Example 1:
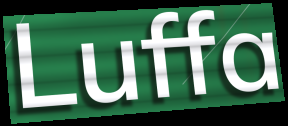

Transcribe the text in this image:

Luffa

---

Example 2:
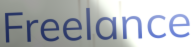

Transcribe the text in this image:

Freelance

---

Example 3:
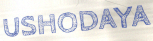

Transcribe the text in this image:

USHODAYA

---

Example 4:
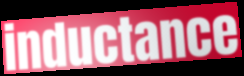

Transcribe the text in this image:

inductance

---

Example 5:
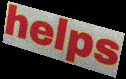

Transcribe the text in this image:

helps